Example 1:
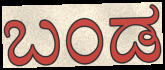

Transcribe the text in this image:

ಬಂಡ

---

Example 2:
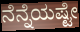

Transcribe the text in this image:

ನೆನ್ನೆಯಷ್ಟೇ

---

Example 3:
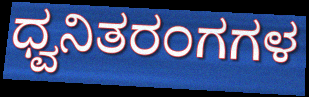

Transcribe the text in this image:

ಧ್ವನಿತರಂಗಗಳ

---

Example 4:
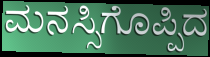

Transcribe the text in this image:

ಮನಸ್ಸಿಗೊಪ್ಪಿದ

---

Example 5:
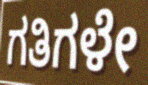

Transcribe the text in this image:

ಗತಿಗಳೇ